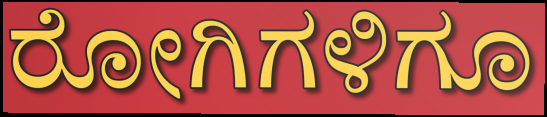
ರೋಗಿಗಳಿಗೂ